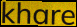
khare